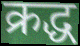
क्रद्ध